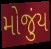
મોજુંય